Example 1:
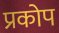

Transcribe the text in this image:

प्रकोप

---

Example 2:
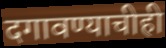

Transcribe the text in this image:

दगावण्याचीही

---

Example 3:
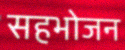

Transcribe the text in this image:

सहभोजन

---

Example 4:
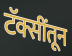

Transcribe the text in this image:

टॅक्सींतून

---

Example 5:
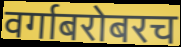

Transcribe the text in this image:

वर्गाबरोबरच